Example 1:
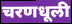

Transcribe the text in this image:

चरणधूली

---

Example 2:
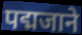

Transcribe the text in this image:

पद्मजाने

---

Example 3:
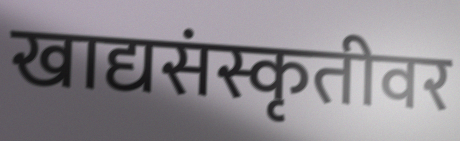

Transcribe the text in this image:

खाद्यसंस्कृतीवर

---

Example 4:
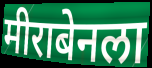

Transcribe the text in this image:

मीराबेनला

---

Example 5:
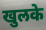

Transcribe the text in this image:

खुलके